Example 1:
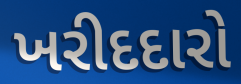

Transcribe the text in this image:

ખરીદદારો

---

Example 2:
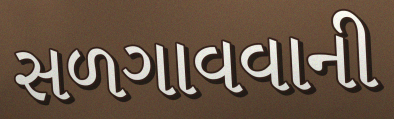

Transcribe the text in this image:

સળગાવવાની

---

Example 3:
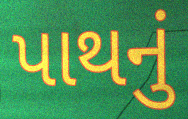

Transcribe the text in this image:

પાથનું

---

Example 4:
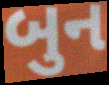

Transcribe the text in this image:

બુન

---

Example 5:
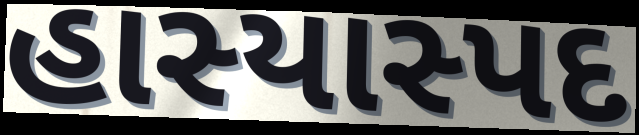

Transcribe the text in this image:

હાસ્યાસ્પદ